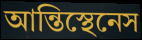
আন্তিস্থেনেস